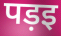
पड़इ